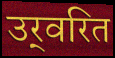
उर्वरित